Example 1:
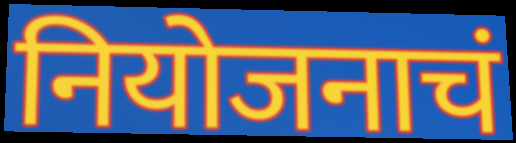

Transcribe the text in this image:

नियोजनाचं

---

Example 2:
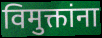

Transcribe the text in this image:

विमुक्तांना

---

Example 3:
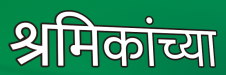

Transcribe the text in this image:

श्रमिकांच्या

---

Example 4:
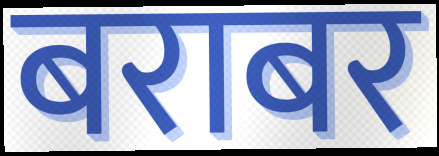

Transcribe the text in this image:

बराबर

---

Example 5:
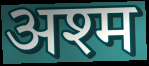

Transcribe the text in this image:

अश्म